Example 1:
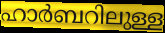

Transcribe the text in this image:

ഹാർബറിലുള്ള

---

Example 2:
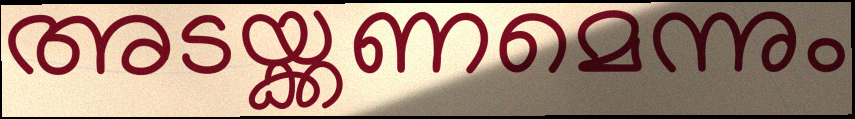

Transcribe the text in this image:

അടയ്ക്കണമെന്നും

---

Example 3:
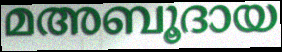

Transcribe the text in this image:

മഅബൂദായ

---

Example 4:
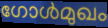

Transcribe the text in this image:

ഗോൾമുഖം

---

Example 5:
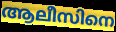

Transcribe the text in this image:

ആലീസിനെ